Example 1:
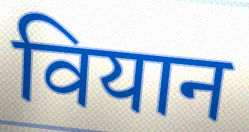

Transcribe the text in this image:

वियान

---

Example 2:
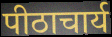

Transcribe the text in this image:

पीठाचार्य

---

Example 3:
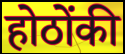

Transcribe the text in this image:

होठोंकी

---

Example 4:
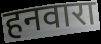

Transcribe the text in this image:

हनवारा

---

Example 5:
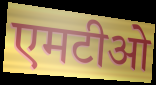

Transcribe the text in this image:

एमटीओ